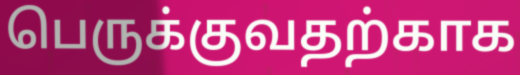
பெருக்குவதற்காக